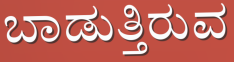
ಬಾಡುತ್ತಿರುವ